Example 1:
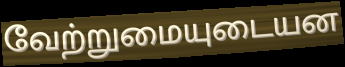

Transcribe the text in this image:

வேற்றுமையுடையன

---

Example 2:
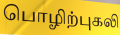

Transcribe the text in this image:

பொழிற்புகலி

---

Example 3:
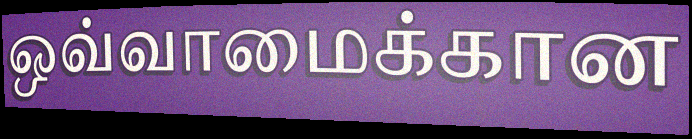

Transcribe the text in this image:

ஒவ்வாமைக்கான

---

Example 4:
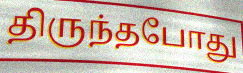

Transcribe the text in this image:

திருந்தபோது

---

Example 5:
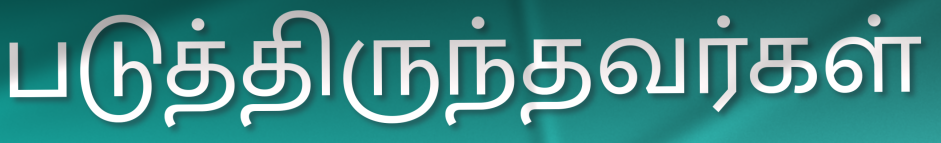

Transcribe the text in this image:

படுத்திருந்தவர்கள்